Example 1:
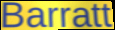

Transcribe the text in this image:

Barratt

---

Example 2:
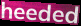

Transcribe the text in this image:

heeded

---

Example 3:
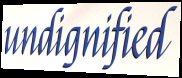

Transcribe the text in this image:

undignified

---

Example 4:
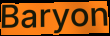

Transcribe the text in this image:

Baryon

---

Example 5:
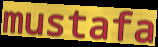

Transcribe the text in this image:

mustafa